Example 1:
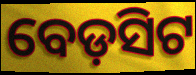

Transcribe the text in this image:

ବେଡ଼ସିଟ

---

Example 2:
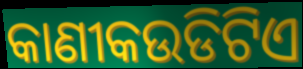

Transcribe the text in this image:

କାଣୀକଉଡିଟିଏ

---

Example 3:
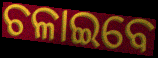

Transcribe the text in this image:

ଚଳାଇବେ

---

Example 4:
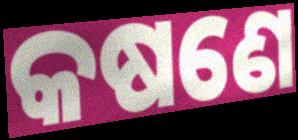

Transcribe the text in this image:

କଷଣେ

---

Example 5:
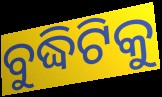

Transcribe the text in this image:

ବୁଦ୍ଧିଟିକୁ